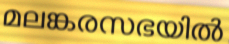
മലങ്കരസഭയിൽ